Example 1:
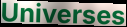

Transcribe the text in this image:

Universes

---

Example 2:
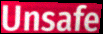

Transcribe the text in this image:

Unsafe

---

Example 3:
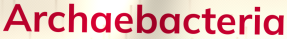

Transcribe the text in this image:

Archaebacteria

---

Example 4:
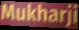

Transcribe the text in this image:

Mukharji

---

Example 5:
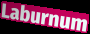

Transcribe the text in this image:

Laburnum